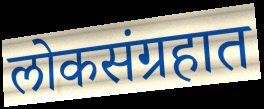
लोकसंग्रहात